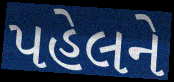
પહેલને